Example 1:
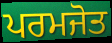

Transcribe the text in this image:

ਪਰਮਜੋਤ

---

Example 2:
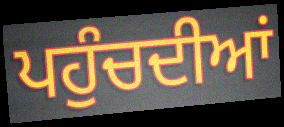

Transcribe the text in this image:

ਪਹੁੰਚਦੀਆਂ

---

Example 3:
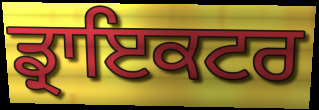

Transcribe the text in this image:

ਡ੍ਰਾਇਕਟਰ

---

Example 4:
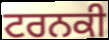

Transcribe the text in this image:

ਟਰਨਕੀ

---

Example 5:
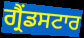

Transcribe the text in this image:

ਗ੍ਰੈਂਡਸਟਾਰ